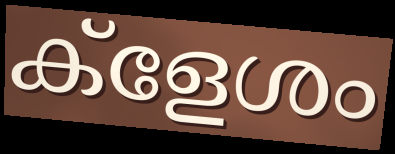
ക്ളേശം